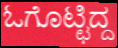
ಓಗೊಟ್ಟಿದ್ದ